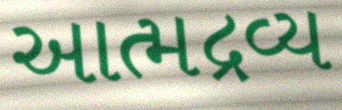
આત્મદ્રવ્ય